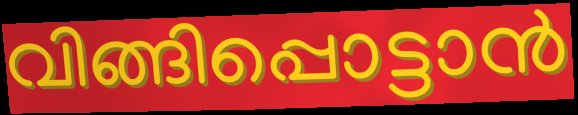
വിങ്ങിപ്പൊട്ടാൻ